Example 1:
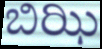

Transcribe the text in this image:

ಬಿಝಿ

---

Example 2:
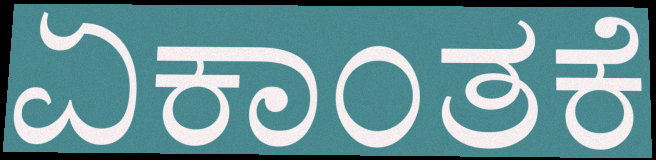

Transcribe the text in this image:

ಏಕಾಂತಕೆ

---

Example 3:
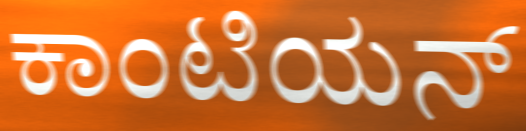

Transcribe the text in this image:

ಕಾಂಟಿಯನ್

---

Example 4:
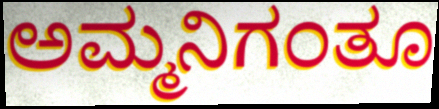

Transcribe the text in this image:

ಅಮ್ಮನಿಗಂತೂ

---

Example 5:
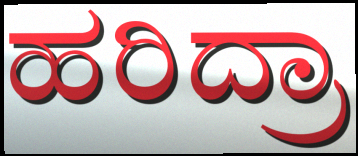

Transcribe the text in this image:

ಹರಿದ್ರಾ